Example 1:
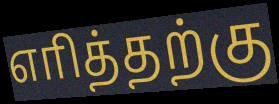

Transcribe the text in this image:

எரித்தற்கு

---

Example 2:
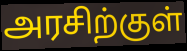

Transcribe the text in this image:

அரசிற்குள்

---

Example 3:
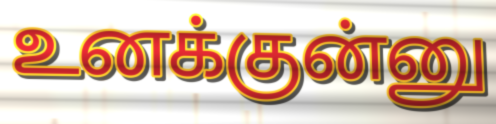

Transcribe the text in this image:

உனக்குன்னு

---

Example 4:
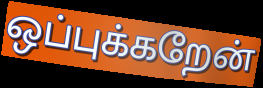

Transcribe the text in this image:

ஒப்புக்கறேன்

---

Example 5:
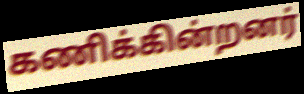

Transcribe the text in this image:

கணிக்கின்றனர்